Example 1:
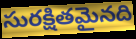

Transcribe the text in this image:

సురక్షితమైనది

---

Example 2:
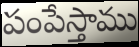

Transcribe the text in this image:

పంపేస్తాము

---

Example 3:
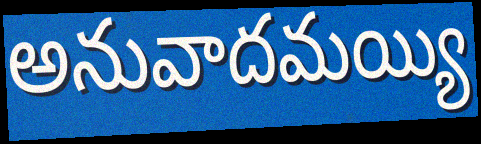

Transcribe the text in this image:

అనువాదమయ్యి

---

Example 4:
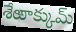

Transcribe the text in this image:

శేఱాక్కుమ్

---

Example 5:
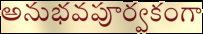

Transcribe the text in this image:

అనుభవపూర్వకంగా